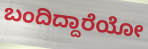
ಬಂದಿದ್ದಾರೆಯೋ